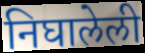
निघालेली